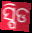
ସ୍ପିଡ